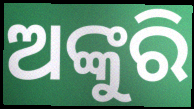
ଅଙ୍କୁରି